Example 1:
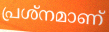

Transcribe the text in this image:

പ്രശ്നമാണ്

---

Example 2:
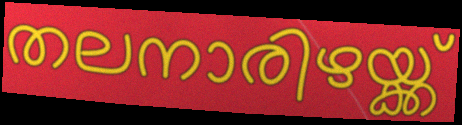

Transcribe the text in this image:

തലനാരിഴയ്ക്ക്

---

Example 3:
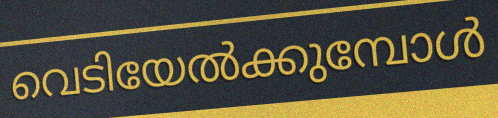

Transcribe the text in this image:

വെടിയേൽക്കുമ്പോൾ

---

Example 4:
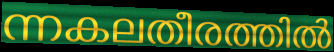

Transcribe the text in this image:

ന്നകലതീരത്തിൽ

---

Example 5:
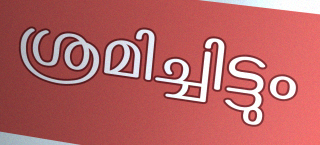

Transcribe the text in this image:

ശ്രമിച്ചിട്ടും